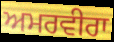
ਅਮਰਵੀਰਾ